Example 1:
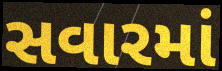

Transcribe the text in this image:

સવારમાં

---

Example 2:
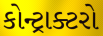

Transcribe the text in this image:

કોન્ટ્રાક્ટરો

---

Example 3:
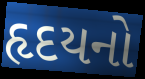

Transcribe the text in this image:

હૃદયનો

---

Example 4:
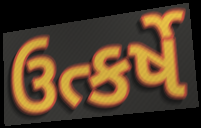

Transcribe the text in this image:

ઉત્કર્ષે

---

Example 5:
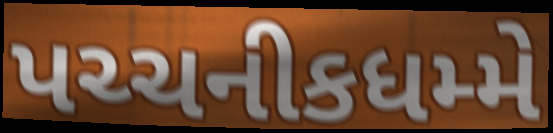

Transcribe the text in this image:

પચ્ચનીકધમ્મે